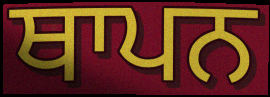
ਥਾਪਨ